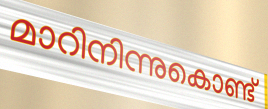
മാറിനിന്നുകൊണ്ട്